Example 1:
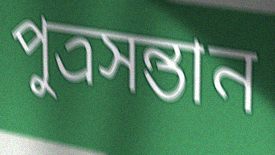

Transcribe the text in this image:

পুত্রসন্তান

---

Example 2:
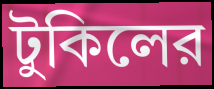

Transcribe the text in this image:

টুকিলের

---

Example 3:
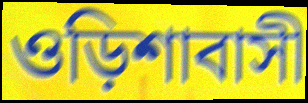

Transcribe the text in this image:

ওড়িশাবাসী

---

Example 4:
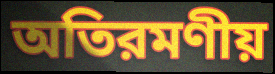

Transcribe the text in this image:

অতিরমণীয়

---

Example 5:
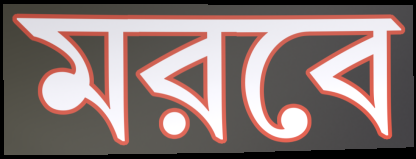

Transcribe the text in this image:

মরবে